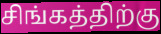
சிங்கத்திற்கு